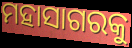
ମହାସାଗରକୁ